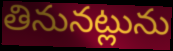
తినునట్లును